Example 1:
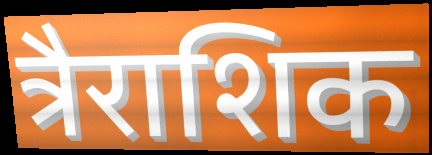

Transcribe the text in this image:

त्रैराशिक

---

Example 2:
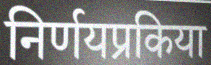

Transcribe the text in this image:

निर्णयप्रकिया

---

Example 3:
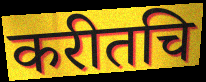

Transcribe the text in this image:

करीतचि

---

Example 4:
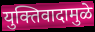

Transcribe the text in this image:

युक्तिवादामुळे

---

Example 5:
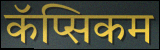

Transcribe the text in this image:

कॅप्सिकम